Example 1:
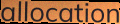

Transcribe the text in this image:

allocation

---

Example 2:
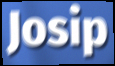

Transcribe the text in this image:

Josip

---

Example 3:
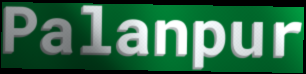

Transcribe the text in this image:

Palanpur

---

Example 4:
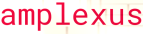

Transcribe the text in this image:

amplexus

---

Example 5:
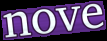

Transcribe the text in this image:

nove